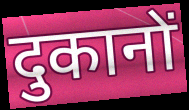
दुकानों